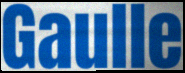
Gaulle